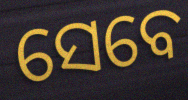
ସେବେ